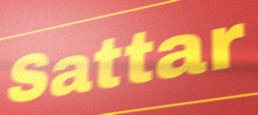
Sattar